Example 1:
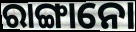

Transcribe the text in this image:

ରାଙ୍ଗାନୋ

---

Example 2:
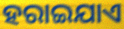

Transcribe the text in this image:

ହରାଇଯାଏ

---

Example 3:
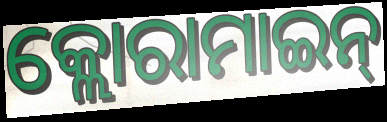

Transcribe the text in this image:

କ୍ଲୋରାମାଇନ୍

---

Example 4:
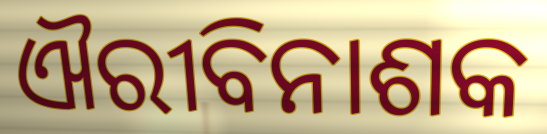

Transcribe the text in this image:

ଐରୀବିନାଶକ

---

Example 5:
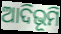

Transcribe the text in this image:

ଆଦିଭୂମି